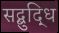
सद्बुद्धि